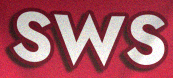
SWS